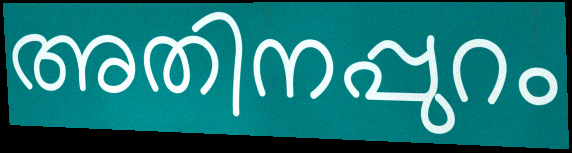
അതിനപ്പുറം